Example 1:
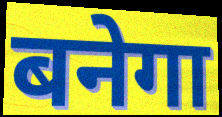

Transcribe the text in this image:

बनेगा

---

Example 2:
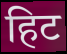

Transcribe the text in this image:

हिट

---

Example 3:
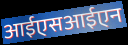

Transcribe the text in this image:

आईएसआईएन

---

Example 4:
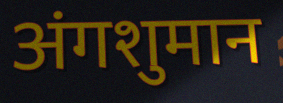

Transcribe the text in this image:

अंगशुमान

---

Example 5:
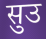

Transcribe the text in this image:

सुउ